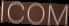
ICOM